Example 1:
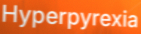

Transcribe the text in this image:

Hyperpyrexia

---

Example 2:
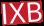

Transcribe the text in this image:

IXB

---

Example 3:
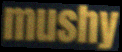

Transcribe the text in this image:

mushy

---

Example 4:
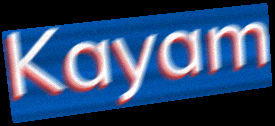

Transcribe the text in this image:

Kayam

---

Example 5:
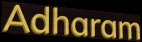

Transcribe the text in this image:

Adharam